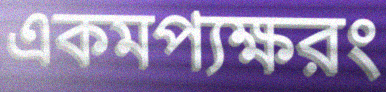
একমপ্যক্ষরং